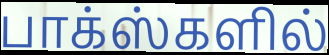
பாக்ஸ்களில்